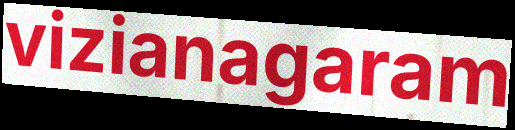
vizianagaram